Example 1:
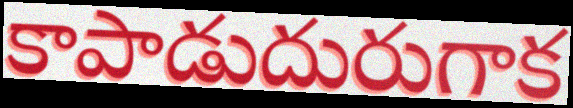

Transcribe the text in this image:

కాపాడుదురుగాక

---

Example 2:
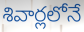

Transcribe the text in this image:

శివార్లలోనే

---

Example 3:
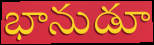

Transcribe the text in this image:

భానుడూ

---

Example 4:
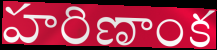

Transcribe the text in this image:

హరిణాంక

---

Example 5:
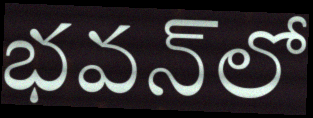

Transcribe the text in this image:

భవన్‌లో